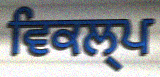
ਵਿਕਲ੍ਪ